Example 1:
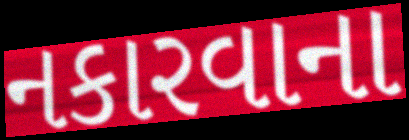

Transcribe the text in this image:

નકારવાના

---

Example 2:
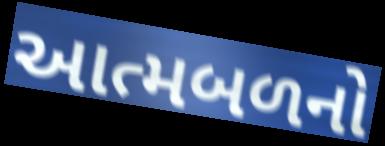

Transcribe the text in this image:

આત્મબળનો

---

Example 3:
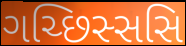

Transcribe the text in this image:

ગચ્છિસ્સસિ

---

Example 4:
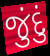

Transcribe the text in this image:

જુંદું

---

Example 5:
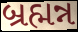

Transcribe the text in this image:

બ્રહ્મન્ન